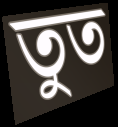
তুত